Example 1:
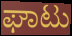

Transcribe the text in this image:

ಘಾಟು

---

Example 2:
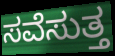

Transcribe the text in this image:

ಸವೆಸುತ್ತ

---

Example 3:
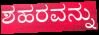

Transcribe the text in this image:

ಶಹರವನ್ನು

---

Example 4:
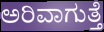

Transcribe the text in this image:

ಅರಿವಾಗುತ್ತೆ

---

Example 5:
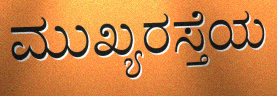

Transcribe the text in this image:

ಮುಖ್ಯರಸ್ತೆಯ